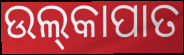
ଉଲ୍‍କାପାତ